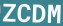
ZCDM